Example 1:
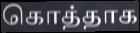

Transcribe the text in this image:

கொத்தாக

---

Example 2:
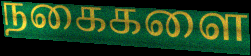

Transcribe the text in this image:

நகைகளை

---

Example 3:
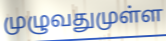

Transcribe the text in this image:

முழுவதுமுள்ள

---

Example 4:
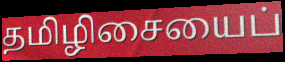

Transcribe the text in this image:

தமிழிசையைப்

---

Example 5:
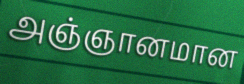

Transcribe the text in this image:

அஞ்ஞானமான